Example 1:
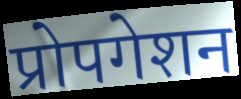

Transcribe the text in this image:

प्रोपगेशन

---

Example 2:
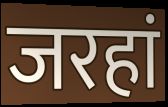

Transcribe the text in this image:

जरहां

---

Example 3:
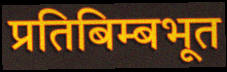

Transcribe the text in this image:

प्रतिबिम्बभूत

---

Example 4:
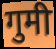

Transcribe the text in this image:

गुमी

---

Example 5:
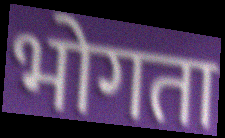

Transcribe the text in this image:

भोगता